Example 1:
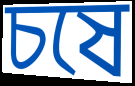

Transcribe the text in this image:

চষে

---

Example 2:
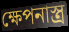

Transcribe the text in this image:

ক্ষেপনাস্ত্র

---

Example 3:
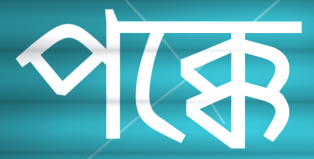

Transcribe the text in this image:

পক্কে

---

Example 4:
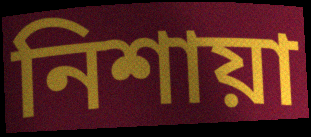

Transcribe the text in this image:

নিশায়া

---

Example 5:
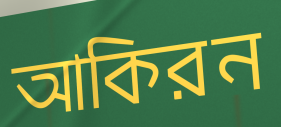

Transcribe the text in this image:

আকিরন